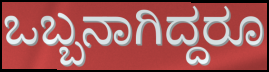
ಒಬ್ಬನಾಗಿದ್ದರೂ